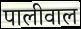
पालीवाल